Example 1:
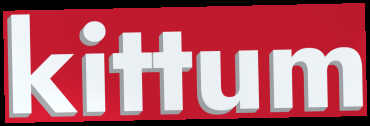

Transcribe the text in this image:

kittum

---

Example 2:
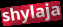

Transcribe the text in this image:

shylaja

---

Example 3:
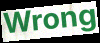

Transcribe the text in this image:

Wrong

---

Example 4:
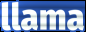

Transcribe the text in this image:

llama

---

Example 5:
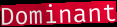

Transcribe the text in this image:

Dominant